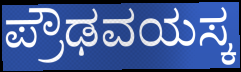
ಪ್ರೌಢವಯಸ್ಕ